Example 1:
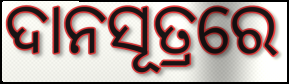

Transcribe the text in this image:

ଦାନସୂତ୍ରରେ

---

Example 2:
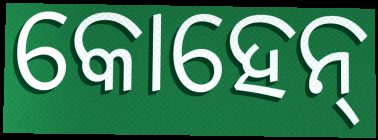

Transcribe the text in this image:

କୋହେନ୍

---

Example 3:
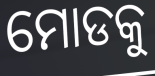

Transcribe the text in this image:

ମୋଡକୁ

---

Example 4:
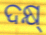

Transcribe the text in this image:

ଦକ୍ଷ୍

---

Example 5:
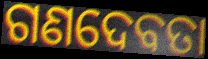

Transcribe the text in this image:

ଗଣଦେବତା